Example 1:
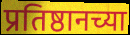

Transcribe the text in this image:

प्रतिष्ठानच्या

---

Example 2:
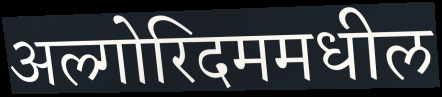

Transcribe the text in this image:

अल्गोरिदममधील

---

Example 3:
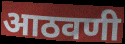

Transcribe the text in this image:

आठवणी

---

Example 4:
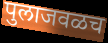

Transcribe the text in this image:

पुलाजवळच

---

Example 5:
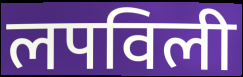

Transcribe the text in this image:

लपविली